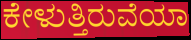
ಕೇಳುತ್ತಿರುವೆಯಾ